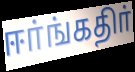
ஈர்ங்கதிர்